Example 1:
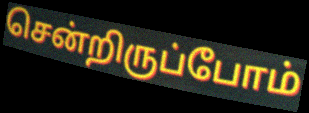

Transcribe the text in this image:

சென்றிருப்போம்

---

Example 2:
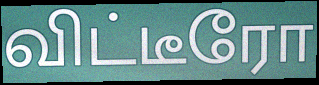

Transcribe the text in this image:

விட்டீரோ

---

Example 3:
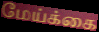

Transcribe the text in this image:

மேய்க்கை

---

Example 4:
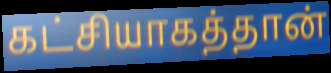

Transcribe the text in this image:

கட்சியாகத்தான்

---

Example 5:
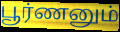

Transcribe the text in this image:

பூர்ணனும்